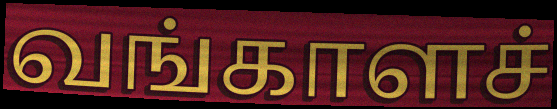
வங்காளச்